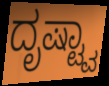
ದೃಷ್ಟ್ವಾ